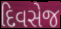
દિવસેજ